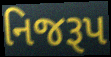
નિજરૂપ